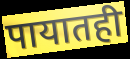
पायातही